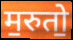
म॒रुतो॒